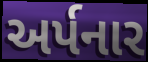
અર્પનાર